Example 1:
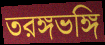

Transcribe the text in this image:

তরঙ্গভঙ্গি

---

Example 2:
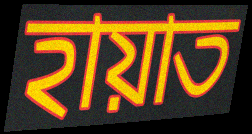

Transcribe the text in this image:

হায়াত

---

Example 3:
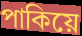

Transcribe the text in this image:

পাকিয়ে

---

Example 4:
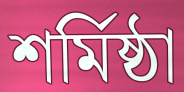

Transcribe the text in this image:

শর্মিষ্ঠা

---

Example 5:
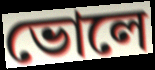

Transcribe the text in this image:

ভোলে